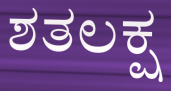
ಶತಲಕ್ಷ